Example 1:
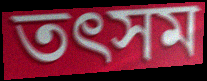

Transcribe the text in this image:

তৎসম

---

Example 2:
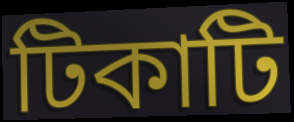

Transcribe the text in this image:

টিকাটি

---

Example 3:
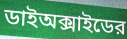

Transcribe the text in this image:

ডাইঅক্সাইডের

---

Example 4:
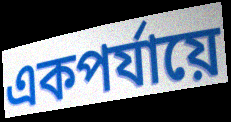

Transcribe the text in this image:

একপর্যায়ে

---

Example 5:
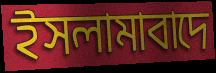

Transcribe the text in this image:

ইসলামাবাদে